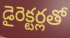
డైరెక్టర్లతో